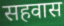
सहवास